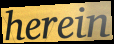
herein